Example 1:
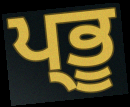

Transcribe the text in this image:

ਪ੍ਭੂ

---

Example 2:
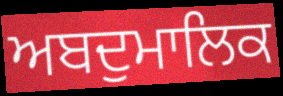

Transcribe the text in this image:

ਅਬਦੁਮਾਲਿਕ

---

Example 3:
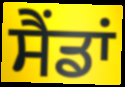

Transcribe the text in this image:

ਸੈਂਡਾਂ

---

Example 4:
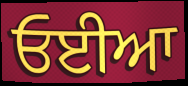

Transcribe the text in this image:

ਓਈਆ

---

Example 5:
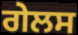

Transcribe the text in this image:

ਗੇਲਸ